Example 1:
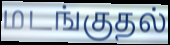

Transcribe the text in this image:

மடங்குதல்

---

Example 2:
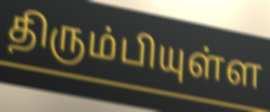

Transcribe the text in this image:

திரும்பியுள்ள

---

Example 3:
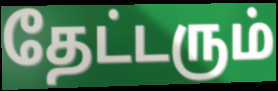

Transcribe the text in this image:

தேட்டரும்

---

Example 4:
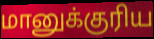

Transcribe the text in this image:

மானுக்குரிய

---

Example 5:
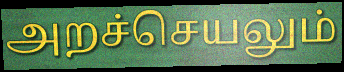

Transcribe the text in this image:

அறச்செயலும்